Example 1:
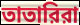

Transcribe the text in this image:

তাতারিরা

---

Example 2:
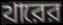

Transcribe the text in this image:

থারের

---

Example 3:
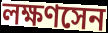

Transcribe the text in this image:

লক্ষণসেন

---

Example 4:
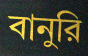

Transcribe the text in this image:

বানুরি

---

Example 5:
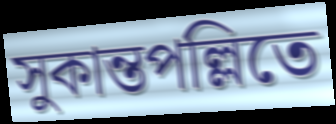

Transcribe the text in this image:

সুকান্তপল্লিতে